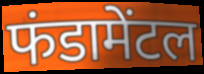
फंडामेंटल